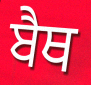
ਬੈਥ